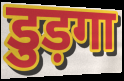
डुड़गा